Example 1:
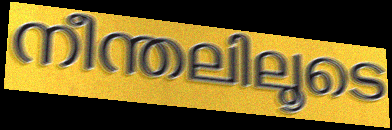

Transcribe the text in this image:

നീന്തലിലൂടെ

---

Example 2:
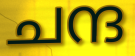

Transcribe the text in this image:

ചന്ദ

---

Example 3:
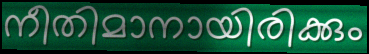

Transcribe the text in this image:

നീതിമാനായിരിക്കും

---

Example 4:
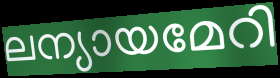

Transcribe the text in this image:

ലന്യായമേറി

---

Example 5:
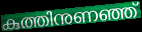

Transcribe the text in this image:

കുത്തിനുണഞ്ഞ്